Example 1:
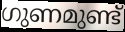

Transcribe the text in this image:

ഗുണമുണ്ട്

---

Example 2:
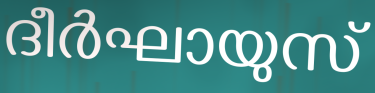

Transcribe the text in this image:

ദീർഘായുസ്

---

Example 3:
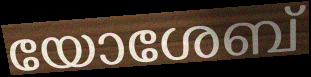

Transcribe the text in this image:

യോശേബ്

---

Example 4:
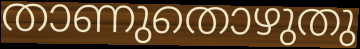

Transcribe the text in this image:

താണുതൊഴുതു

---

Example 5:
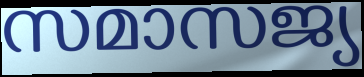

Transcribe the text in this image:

സമാസജ്യ